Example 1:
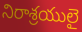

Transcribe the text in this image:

నిరాశ్రయులై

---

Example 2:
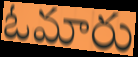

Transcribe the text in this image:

ఓమారు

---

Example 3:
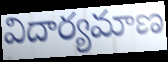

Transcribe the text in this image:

విదార్యమాణ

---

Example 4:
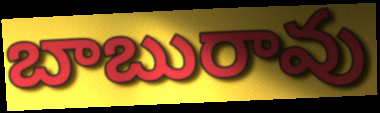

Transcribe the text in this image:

బాబురావు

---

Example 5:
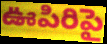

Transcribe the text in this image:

ఊపిరిపై